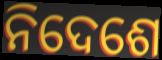
ନିଦେଶେ